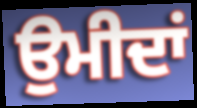
ਉਮੀਦਾਂ